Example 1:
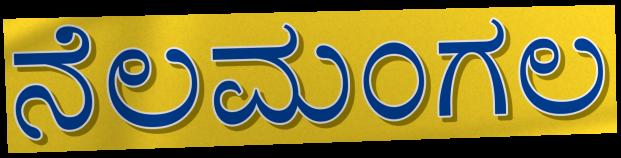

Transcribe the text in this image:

ನೆಲಮಂಗಲ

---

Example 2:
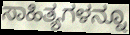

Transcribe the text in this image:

ಸಾಹಿತ್ಯಗಳನ್ನೂ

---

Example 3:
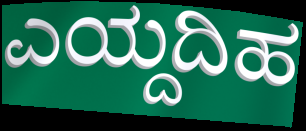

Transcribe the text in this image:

ಎಯ್ದದಿಹ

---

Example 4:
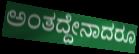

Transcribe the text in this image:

ಅಂತದ್ದೇನಾದರೂ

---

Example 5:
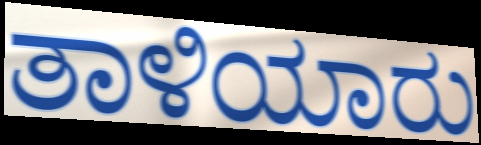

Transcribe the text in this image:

ತಾಳಿಯಾರು